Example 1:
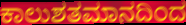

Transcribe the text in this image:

ಕಾಲುಶತಮಾನದಿಂದ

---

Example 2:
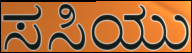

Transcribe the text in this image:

ಸಸಿಯು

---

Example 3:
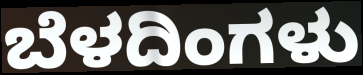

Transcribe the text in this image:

ಬೆಳದಿಂಗಳು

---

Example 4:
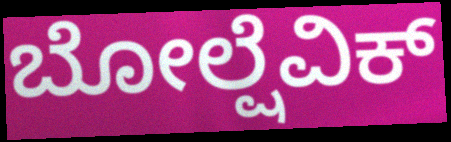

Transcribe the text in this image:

ಬೋಲ್ಷೆವಿಕ್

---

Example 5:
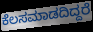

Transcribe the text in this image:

ಕೆಲಸಮಾಡದಿದ್ದರೆ